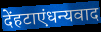
देंहटाएंधन्यवाद